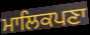
ਮਾਲਿਕਪਣਾ